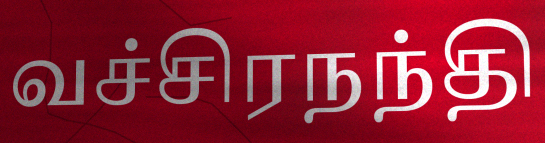
வச்சிரநந்தி